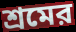
শ্রমের